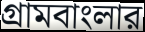
গ্রামবাংলার